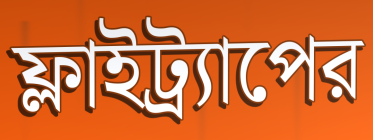
ফ্লাইট্র্যাপের